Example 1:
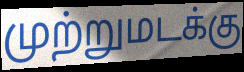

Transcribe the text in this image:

முற்றுமடக்கு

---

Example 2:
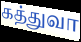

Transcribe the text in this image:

கத்துவா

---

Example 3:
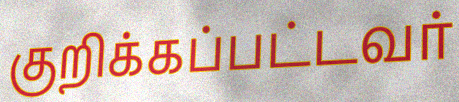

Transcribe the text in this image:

குறிக்கப்பட்டவர்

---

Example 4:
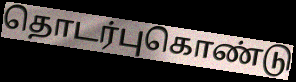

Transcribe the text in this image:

தொடர்புகொண்டு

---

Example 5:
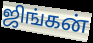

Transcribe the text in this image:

ஜிங்கன்